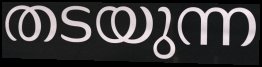
തടയുന്ന